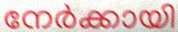
നേർക്കായി